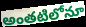
అంతటిలోనూ